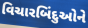
વિચારબિંદુઓને